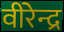
वीरेन्‍द्र